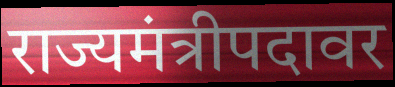
राज्यमंत्रीपदावर